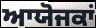
ਆਯੋਜਕਾਂ